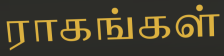
ராகங்கள்